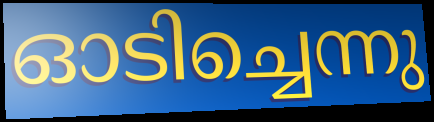
ഓടിച്ചെന്നു